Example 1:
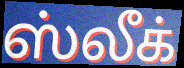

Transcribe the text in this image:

ஸ்லீக்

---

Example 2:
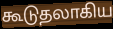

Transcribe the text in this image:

கூடுதலாகிய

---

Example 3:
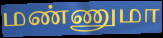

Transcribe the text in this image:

மண்ணுமா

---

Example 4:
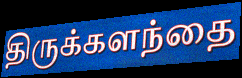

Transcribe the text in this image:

திருக்களந்தை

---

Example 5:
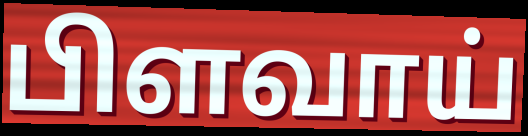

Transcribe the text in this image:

பிளவாய்